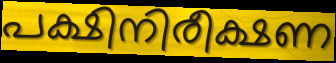
പക്ഷിനിരീക്ഷണ